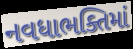
નવધાભક્તિમાં